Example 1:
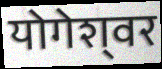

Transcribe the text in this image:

योगेश्वर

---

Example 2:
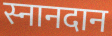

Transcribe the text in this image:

स्नानदान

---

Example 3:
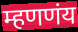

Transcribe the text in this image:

म्हणणंय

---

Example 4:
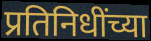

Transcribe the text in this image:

प्रतिनिधींच्या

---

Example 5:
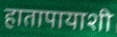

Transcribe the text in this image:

हातापायाशी